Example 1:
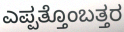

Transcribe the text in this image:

ಎಪ್ಪತ್ತೊಂಬತ್ತರ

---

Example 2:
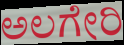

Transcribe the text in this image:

ಅಲಗೇರಿ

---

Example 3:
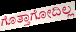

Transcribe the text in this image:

ಗೊತ್ತಾಗೋದಿಲ್ಲ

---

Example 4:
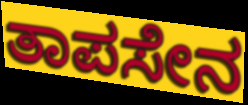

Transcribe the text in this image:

ತಾಪಸೇನ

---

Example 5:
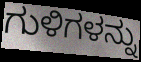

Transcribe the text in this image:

ಗುಳಿಗಳನ್ನು